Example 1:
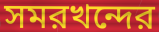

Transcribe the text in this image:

সমরখন্দের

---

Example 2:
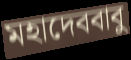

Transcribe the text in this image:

মহাদেববাবু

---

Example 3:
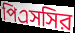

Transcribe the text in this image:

পিএসসির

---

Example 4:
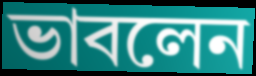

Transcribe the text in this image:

ভাবলেন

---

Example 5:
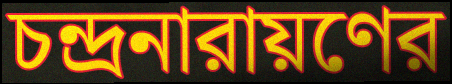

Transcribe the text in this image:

চন্দ্রনারায়ণের